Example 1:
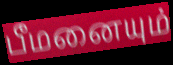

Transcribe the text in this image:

பீமனையும்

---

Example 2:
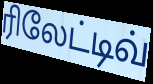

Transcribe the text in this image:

ரிலேட்டிவ்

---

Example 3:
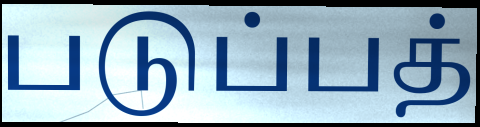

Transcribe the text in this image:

படுப்பத்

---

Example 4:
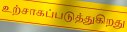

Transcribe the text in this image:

உற்சாகப்படுத்துகிறது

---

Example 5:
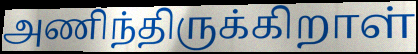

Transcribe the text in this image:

அணிந்திருக்கிறாள்